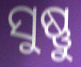
ସୁଷ୍ଣୁ